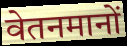
वेतनमानों